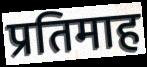
प्रतिमाह